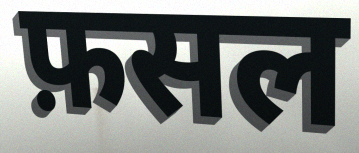
फ़सल